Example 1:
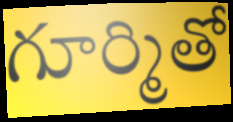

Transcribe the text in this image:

గూర్మితో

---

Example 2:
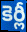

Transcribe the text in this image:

కెర్లీ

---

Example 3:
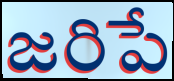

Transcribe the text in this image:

జరిపే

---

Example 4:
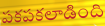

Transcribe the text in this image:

పకపకలాడింది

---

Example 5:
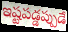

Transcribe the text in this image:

ఇష్టపడ్డప్పుడే